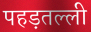
पहड़तल्ली